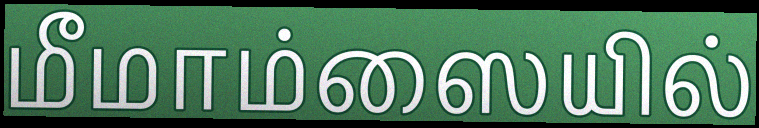
மீமாம்ஸையில்